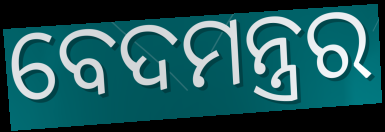
ବେଦମନ୍ତ୍ରର